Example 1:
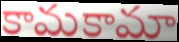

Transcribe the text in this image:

కామకామా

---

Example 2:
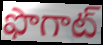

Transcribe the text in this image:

ఫొగాట్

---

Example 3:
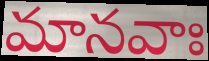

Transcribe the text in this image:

మానవాః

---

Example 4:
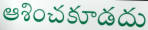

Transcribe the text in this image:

ఆశించకూడదు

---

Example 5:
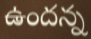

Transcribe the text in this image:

ఉందన్న